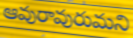
ఆవురావురుమని